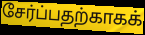
சேர்ப்பதற்காகக்